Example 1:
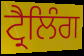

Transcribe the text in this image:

ਟ੍ਰੈਲਿੰਗ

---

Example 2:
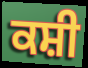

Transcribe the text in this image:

ਕਸ਼ੀ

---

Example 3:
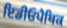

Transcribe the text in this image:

ਇਡੀਓਪੈਥਿਕ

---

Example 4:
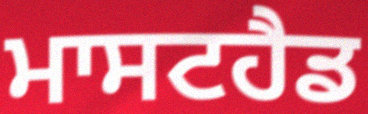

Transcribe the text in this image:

ਮਾਸਟਹੈਡ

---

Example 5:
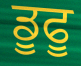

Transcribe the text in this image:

ਡੂਫੂ